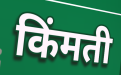
किंमती